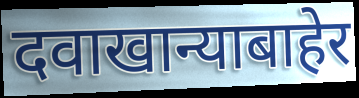
दवाखान्याबाहेर